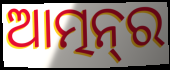
ଆତ୍ମନ୍‌ର